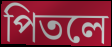
পিতলে